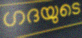
ഗദയുടെ